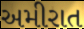
અમીરાત